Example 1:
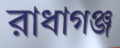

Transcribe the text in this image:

রাধাগঞ্জ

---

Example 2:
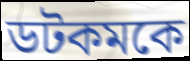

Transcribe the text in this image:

ডটকমকে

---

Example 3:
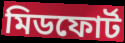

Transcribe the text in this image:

মিডফোর্ট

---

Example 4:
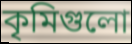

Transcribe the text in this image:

কৃমিগুলো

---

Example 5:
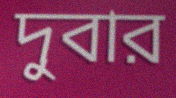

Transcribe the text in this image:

দুবার